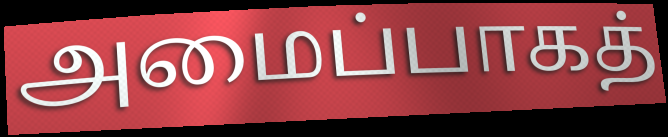
அமைப்பாகத்